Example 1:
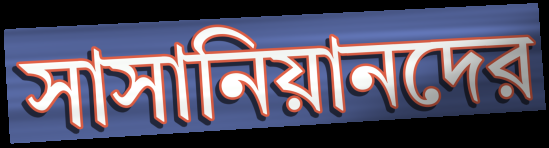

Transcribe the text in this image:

সাসানিয়ানদের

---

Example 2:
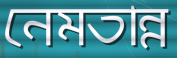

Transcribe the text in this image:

নেমতান্ন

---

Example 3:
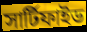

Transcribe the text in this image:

সার্টিফাইড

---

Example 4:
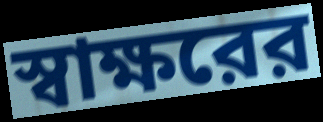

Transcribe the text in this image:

স্বাক্ষরের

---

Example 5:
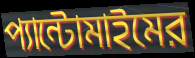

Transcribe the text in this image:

প্যান্টোমাইমের